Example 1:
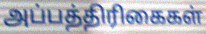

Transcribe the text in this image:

அப்பத்திரிகைகள்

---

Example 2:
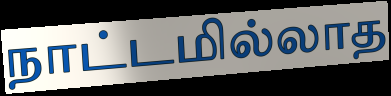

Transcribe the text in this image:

நாட்டமில்லாத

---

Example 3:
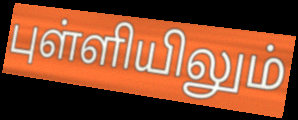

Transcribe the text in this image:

புள்ளியிலும்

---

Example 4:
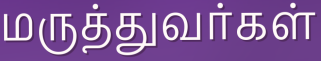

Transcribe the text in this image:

மருத்துவர்கள்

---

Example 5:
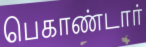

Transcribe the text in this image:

பெகாண்டார்